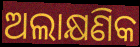
ଅଲାକ୍ଷଣିକ